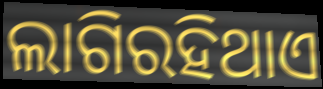
ଲାଗିରହିଥାଏ